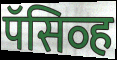
पॅसिव्ह